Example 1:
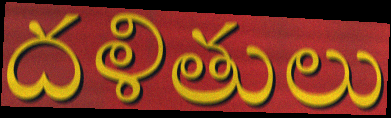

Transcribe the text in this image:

దళితులు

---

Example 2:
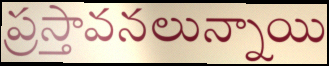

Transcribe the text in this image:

ప్రస్తావనలున్నాయి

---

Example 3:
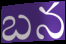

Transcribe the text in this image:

బన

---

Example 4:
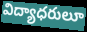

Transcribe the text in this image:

విద్యాధరులూ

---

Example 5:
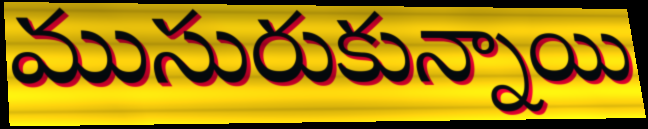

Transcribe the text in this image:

ముసురుకున్నాయి